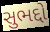
સુભદ્દો